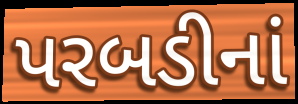
પરબડીનાં